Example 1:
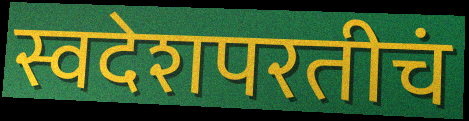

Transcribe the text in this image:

स्वदेशपरतीचं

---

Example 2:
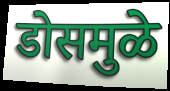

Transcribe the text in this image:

डोसमुळे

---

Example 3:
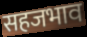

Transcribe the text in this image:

सहजभाव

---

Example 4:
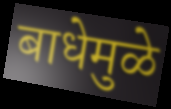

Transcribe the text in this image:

बाधेमुळे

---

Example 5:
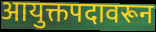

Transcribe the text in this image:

आयुक्तपदावरून